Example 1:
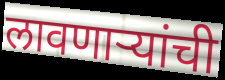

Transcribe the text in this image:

लावणाऱ्यांची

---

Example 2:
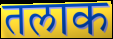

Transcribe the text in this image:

तलाक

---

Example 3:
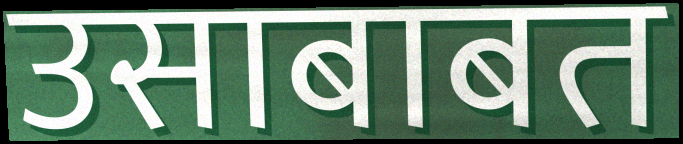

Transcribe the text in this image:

उसाबाबत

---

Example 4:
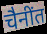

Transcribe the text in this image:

चैनींत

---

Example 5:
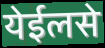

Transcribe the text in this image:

येईलसे